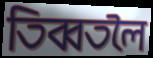
তিব্বতলৈ